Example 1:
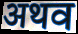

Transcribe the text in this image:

अथव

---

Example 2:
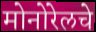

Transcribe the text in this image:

मोनोरेलचे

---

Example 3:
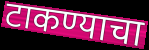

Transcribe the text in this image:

टाकण्याचा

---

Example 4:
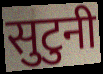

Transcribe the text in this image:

सुटुनी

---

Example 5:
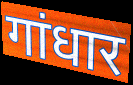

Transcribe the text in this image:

गांधार